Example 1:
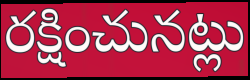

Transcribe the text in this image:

రక్షించునట్లు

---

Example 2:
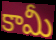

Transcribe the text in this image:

కామీ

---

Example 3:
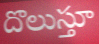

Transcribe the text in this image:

దొలుస్తూ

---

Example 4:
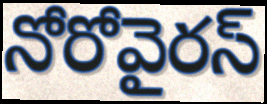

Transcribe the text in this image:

నోరోవైరస్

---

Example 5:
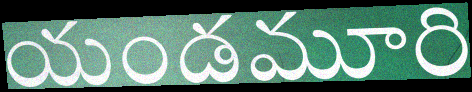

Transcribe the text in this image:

యండమూరి